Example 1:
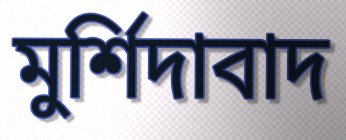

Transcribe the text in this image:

মুর্শিদাবাদ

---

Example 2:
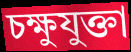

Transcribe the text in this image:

চক্ষুযুক্তা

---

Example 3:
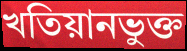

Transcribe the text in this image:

খতিয়ানভুক্ত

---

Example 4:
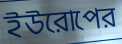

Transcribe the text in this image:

ইউরোপের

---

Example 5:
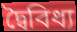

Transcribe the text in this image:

দ্বৈবিধ্য